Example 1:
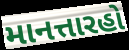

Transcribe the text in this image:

માનત્તારહો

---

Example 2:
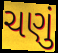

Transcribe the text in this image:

ચણું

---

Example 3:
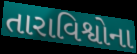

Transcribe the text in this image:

તારાવિશ્વોના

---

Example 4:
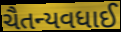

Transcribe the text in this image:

ચૈતન્યવધાઈ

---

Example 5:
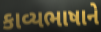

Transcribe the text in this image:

કાવ્યભાષાને